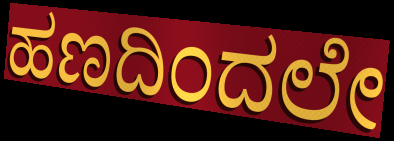
ಹಣದಿಂದಲೇ